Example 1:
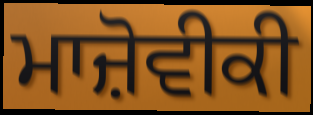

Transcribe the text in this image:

ਮਾਜ਼ੋਵੀਕੀ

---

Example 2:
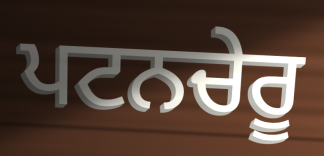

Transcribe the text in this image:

ਪਟਨਚੇਰੂ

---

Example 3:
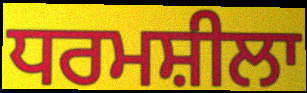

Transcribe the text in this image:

ਧਰਮਸ਼ੀਲਾ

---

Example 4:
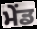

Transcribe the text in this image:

ਮੇਂਡ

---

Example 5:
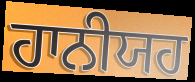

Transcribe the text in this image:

ਹਾਨੀਯਹ